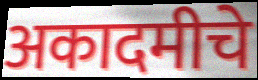
अकादमीचे